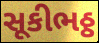
સૂકીભઠ્ઠ